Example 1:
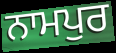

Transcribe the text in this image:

ਨਾਮਪੁਰ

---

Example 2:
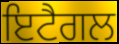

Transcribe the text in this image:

ਇਟੈਗਲ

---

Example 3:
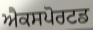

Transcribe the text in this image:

ਐਕਸਪੋਰਟਡ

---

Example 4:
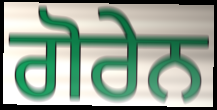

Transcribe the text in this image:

ਗੋਰੇਨ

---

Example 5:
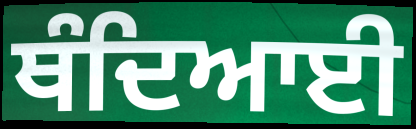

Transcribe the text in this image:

ਥੰਦਿਆਈ